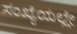
ಸಂಖ್ಯೆಯಲ್ಲೇ